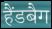
हैंडबैग